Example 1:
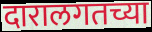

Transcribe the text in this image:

दारालगतच्या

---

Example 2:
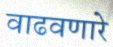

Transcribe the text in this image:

वाढवणारे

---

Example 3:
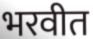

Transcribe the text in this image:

भरवीत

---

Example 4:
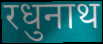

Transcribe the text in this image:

रधुनाथ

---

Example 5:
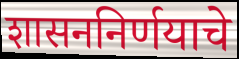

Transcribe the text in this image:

शासननिर्णयाचे